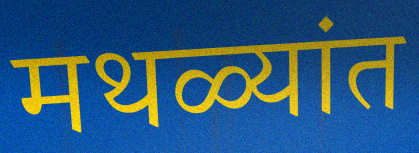
मथळ्यांत